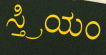
ಸ್ತ್ರಿಯಂ